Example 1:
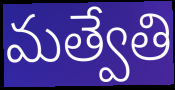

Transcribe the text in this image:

మత్వేతి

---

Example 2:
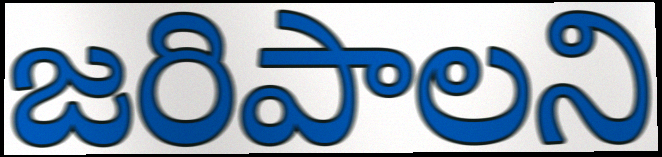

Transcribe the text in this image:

జరిపాలని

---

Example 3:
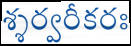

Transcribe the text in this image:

శ్శర్వరీకరః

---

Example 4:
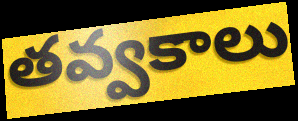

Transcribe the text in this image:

తవ్వకాలు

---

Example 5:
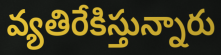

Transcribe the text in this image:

వ్యతిరేకిస్తున్నారు